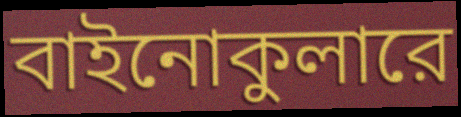
বাইনোকুলারে